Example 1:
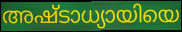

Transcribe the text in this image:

അഷ്ടാധ്യായിയെ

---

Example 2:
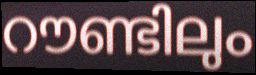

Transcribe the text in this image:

റൗണ്ടിലും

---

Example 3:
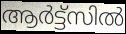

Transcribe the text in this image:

ആർട്ട്സിൽ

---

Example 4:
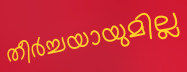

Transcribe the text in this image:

തീർച്ചയായുമില്ല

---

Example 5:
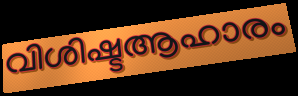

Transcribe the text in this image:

വിശിഷ്ടആഹാരം